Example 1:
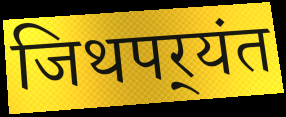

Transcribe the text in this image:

जिथपर्यंत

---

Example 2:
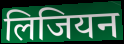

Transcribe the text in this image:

लिजियन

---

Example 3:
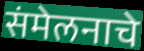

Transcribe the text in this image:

संमेलनाचे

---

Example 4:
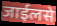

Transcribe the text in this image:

जाईलसे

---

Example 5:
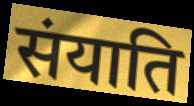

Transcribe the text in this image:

संयाति